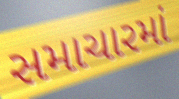
સમાચારમાં